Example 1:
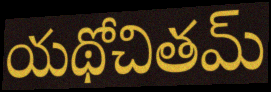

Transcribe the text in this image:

యథోచితమ్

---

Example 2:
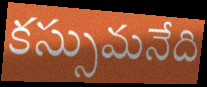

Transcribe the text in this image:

కస్సుమనేది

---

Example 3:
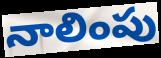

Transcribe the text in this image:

నాలింపు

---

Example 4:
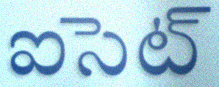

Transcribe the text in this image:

ఐసెట్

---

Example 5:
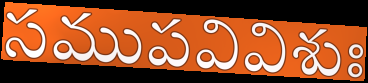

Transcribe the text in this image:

సముపవివిశుః